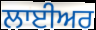
ਲਾਈਅਰ